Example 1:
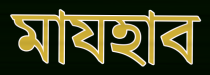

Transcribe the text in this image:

মাযহাব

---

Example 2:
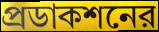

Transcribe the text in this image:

প্রডাকশনের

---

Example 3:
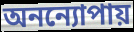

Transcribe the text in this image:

অনন্যোপায়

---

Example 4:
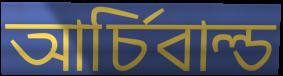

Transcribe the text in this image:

আর্চিবাল্ড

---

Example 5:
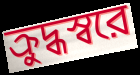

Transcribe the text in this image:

ক্রুদ্ধস্বরে